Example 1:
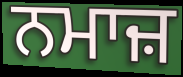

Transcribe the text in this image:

ਨਮਾਜ਼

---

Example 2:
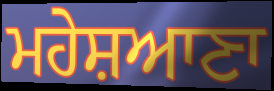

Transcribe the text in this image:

ਮਹੇਸ਼ਆਣਾ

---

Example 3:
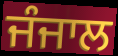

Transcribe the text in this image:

ਜੰਜਾਲ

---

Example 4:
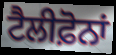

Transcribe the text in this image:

ਟੈਲੀਫ਼ੋਨਾਂ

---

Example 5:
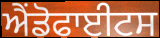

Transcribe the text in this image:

ਐਂਡੋਫਾਈਟਸ